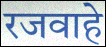
रजवाहे